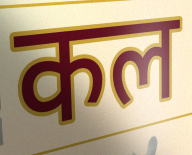
कल